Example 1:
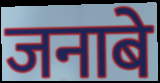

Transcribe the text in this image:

जनाबे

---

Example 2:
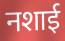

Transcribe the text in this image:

नशाई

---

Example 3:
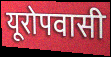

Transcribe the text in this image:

यूरोपवासी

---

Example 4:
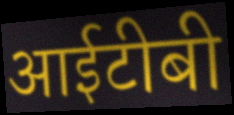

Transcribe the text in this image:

आईटीबी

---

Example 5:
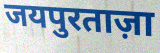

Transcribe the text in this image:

जयपुरताज़ा